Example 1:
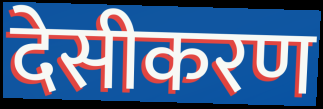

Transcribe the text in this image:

देसीकरण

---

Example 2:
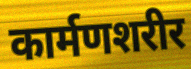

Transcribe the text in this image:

कार्मणशरीर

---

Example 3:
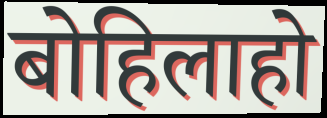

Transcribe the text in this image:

बोहिलाहो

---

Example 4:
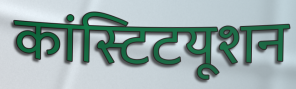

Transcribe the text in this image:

कांस्टिटयूशन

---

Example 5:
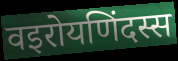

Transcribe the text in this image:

वइरोयणिंदस्स